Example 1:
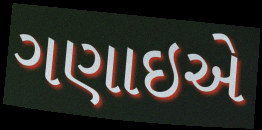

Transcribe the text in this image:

ગણાઇએ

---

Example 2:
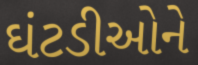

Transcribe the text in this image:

ઘંટડીઓને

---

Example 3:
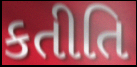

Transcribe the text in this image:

કતીતિ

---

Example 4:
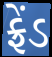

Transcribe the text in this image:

ફ્રેંડ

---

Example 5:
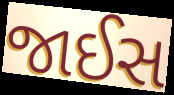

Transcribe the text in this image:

જાઈસ